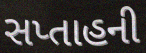
સપ્તાહની